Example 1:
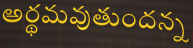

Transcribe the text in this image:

అర్థమవుతుందన్న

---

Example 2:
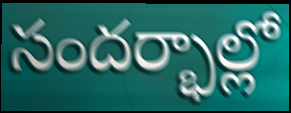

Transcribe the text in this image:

సందర్భాల్లో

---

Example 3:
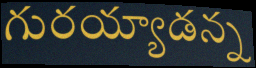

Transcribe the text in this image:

గురయ్యాడన్న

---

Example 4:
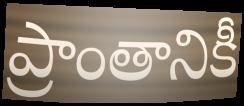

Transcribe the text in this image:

ప్రాంతానికీ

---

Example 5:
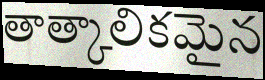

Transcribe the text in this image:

తాత్కాలికమైన